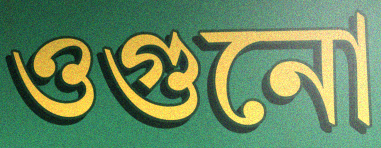
ওগুনো